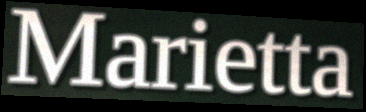
Marietta